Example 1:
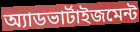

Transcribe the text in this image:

অ্যাডভার্টাইজমেন্ট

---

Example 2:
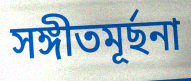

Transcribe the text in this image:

সঙ্গীতমূর্ছনা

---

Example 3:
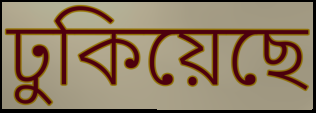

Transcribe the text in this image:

ঢুকিয়েছে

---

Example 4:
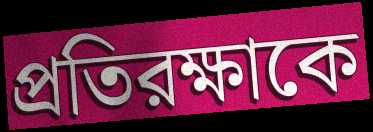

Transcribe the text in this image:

প্রতিরক্ষাকে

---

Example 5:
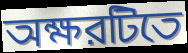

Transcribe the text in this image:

অক্ষরটিতে